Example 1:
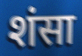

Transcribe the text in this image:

शंसा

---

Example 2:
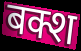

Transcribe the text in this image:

बक्श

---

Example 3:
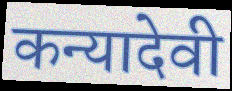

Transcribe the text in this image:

कन्यादेवी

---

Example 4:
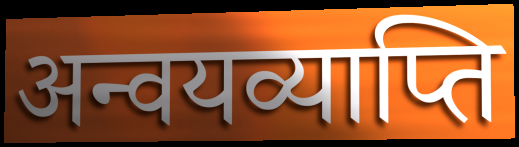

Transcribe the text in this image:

अन्वयव्याप्ति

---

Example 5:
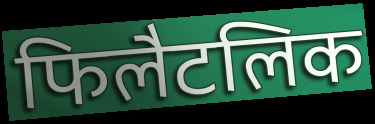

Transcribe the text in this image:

फिलैटलिक